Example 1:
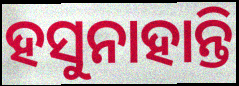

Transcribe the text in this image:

ହସୁନାହାନ୍ତି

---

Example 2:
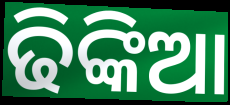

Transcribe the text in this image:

ଢିଙ୍କିଆ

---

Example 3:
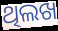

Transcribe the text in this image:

ଥିଲଖ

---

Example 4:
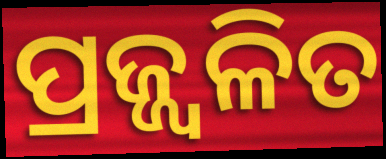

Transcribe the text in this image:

ପ୍ରଜ୍ଜ୍ବଳିତ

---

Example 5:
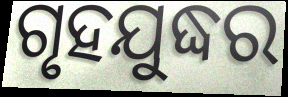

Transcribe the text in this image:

ଗୃହଯୁଦ୍ଧର